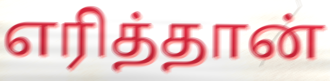
எரித்தான்